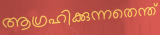
ആഗ്രഹിക്കുന്നതെന്ത്